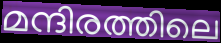
മന്ദിരത്തിലെ